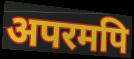
अपरमपि